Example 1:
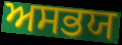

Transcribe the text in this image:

ਅਸਭਯ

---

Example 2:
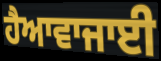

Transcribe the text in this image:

ਹੈਆਵਾਜਾਈ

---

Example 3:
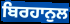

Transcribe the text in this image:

ਬਿਰਹਾਨੁਲ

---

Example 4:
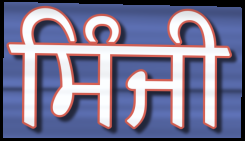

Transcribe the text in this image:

ਸਿੰਜੀ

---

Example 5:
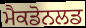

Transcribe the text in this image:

ਮੈਕਡੋਨਲਡ